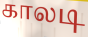
காலடி